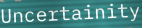
Uncertainity